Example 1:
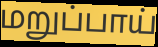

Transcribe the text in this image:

மறுப்பாய்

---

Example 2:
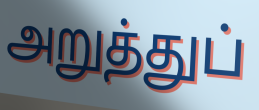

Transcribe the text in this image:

அறுத்துப்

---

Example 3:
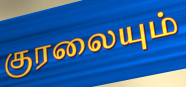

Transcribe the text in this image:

குரலையும்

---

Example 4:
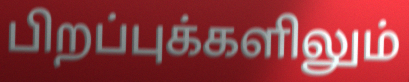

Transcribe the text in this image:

பிறப்புக்களிலும்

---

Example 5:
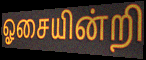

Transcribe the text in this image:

ஓசையின்றி